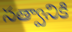
సత్వానికి